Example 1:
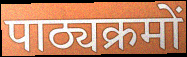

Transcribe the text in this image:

पाठ्यक्रमों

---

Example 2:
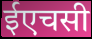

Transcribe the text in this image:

ईएचसी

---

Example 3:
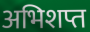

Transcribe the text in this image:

अभिशप्त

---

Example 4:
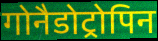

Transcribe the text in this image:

गोनैडोट्रोपिन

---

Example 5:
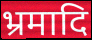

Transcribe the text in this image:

भ्रमादि